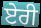
ਏਰੀ